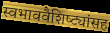
स्वभाववैशिष्ट्यांसह